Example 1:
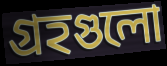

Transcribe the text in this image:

গ্রহগুলো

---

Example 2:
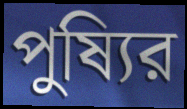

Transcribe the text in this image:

পুষ্যির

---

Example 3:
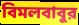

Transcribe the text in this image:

বিমলবাবুর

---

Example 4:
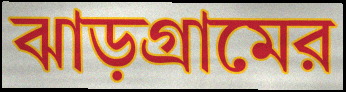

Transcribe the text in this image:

ঝাড়গ্রামের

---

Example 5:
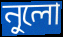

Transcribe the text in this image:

নুলো